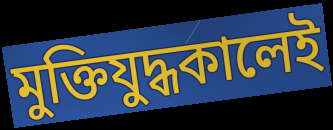
মুক্তিযুদ্ধকালেই